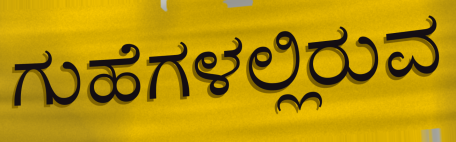
ಗುಹೆಗಳಲ್ಲಿರುವ